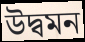
উদ্বমন